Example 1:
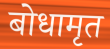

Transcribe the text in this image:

बोधामृत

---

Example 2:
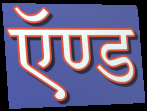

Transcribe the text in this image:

ऍण्ड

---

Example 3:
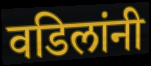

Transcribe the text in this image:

वडिलांनी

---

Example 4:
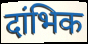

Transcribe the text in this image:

दांभिक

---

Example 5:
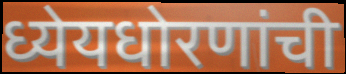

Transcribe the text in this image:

ध्येयधोरणांची